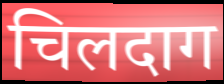
चिलदाग